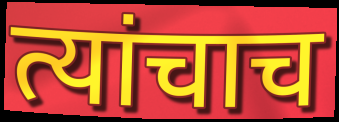
त्यांचाच